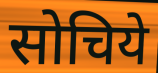
सोचिये